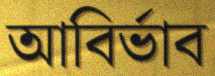
আবির্ভাব